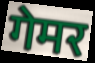
गेमर